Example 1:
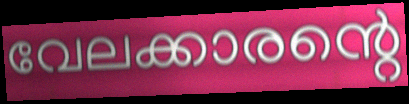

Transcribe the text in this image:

വേലക്കാരന്റെ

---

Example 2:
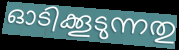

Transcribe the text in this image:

ഓടിക്കൂടുന്നതു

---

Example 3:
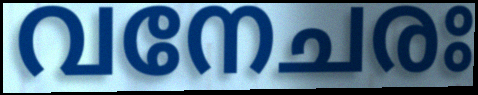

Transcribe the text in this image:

വനേചരഃ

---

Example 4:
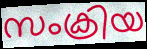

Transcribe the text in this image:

സംക്രിയ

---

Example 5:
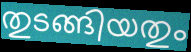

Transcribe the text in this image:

തുടങ്ങിയതും